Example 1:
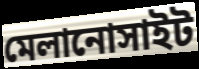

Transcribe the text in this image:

মেলানোসাইট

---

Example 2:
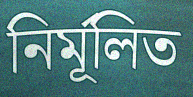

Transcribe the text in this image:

নির্মূলিত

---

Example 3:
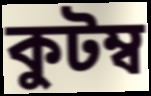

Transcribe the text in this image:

কুটম্ব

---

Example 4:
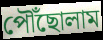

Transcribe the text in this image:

পৌঁছোলাম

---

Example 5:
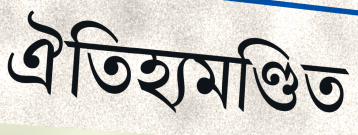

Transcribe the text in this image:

ঐতিহ্যমণ্ডিত